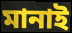
মানাই